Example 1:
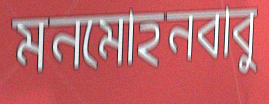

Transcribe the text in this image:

মনমোহনবাবু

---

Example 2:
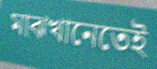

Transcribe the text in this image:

মাঝখানেতেই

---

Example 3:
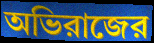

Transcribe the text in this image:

অভিরাজের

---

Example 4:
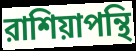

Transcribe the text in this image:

রাশিয়াপন্থি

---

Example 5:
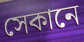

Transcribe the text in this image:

সেকানে